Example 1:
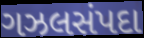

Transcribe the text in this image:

ગઝલસંપદા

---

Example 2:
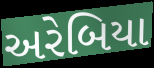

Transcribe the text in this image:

અરેબિયા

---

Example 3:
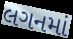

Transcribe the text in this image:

લગનમાં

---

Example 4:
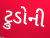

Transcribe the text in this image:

ટ્રુડોની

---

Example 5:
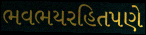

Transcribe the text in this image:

ભવભયરહિતપણે